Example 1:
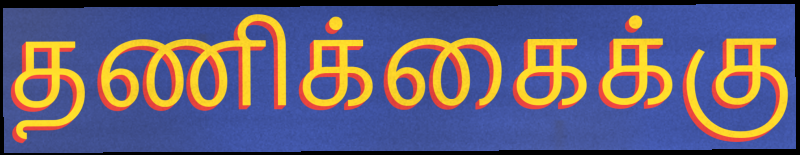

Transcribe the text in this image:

தணிக்கைக்கு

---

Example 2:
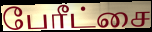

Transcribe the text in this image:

பேரீட்சை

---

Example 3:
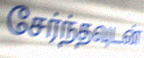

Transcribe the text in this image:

சேர்ந்தவுடன்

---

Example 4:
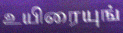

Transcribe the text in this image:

உயிரையுங்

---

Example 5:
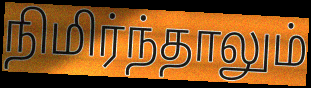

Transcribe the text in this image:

நிமிர்ந்தாலும்